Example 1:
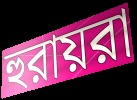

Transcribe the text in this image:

হুরায়রা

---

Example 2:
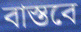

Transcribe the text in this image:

বাস্তবে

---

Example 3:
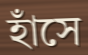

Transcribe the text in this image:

হাঁসে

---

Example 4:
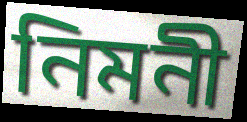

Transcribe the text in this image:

নিমনী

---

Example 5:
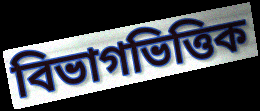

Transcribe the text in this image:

বিভাগভিত্তিক